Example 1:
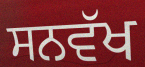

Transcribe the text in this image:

ਸਨਵੱਖ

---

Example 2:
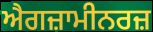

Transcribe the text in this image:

ਐਗਜ਼ਾਮੀਨਰਜ਼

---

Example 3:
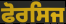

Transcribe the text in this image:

ਫੋਰਸਿਜ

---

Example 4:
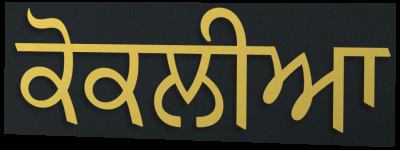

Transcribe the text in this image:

ਕੋਕਲੀਆ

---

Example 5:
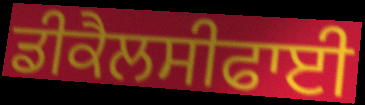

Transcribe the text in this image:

ਡੀਕੈਲਸੀਫਾਈ